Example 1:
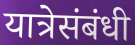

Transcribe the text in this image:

यात्रेसंबंधी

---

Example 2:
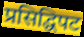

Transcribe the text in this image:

प्रसिद्धिपट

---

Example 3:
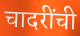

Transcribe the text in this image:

चादरींची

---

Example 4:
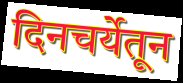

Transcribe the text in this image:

दिनचर्येतून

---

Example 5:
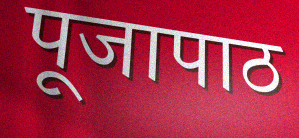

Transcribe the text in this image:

पूजापाठ